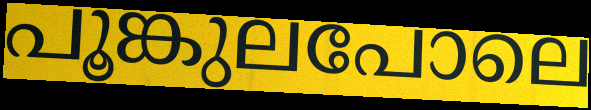
പൂങ്കുലപോലെ